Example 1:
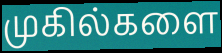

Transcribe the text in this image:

முகில்களை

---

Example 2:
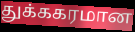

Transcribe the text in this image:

துக்ககரமான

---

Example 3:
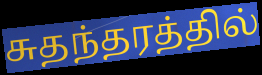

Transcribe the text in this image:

சுதந்தரத்தில்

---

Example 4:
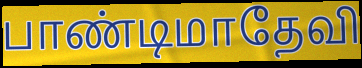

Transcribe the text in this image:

பாண்டிமாதேவி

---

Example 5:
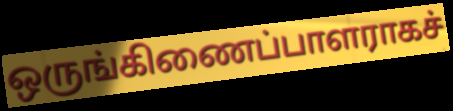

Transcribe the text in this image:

ஒருங்கிணைப்பாளராகச்